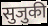
सुजुकी